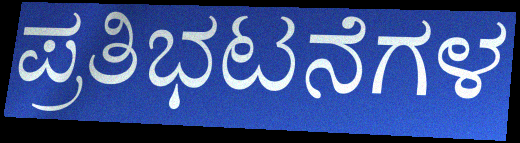
ಪ್ರತಿಭಟನೆಗಳ